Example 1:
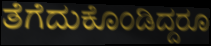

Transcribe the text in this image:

ತೆಗೆದುಕೊಂಡಿದ್ದರೂ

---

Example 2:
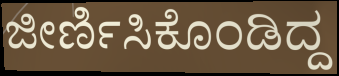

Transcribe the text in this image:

ಜೀರ್ಣಿಸಿಕೊಂಡಿದ್ದ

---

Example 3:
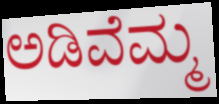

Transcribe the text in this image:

ಅಡಿವೆಮ್ಮ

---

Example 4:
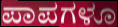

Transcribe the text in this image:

ಪಾಪಗಳೂ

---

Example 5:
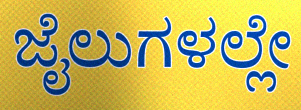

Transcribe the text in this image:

ಜೈಲುಗಳಲ್ಲೇ